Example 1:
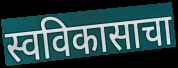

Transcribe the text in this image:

स्वविकासाचा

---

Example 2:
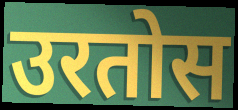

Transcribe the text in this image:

उरतोस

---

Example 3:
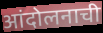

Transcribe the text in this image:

आंदोलनाची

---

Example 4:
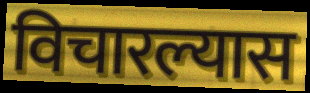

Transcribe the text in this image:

विचारल्यास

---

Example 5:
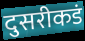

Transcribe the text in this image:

दुसरीकडं